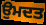
ਉਮਦਤ